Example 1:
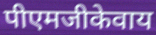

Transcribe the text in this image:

पीएमजीकेवाय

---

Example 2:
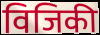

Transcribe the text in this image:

विजिकी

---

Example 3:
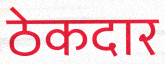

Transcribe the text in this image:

ठेकदार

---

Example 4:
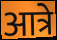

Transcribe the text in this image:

आत्रे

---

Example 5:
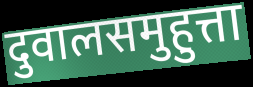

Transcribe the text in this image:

दुवालसमुहुत्ता